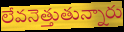
లేవనెత్తుతున్నారు